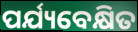
ପର୍ଯ୍ୟବେକ୍ଷିତ